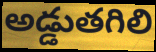
అడ్డుతగిలి